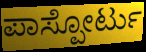
ಪಾಸ್ಪೋರ್ಟು